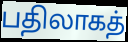
பதிலாகத்